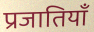
प्रजातियाँ